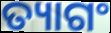
ତ୍ୟାଗଂ